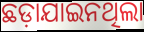
ଛଡ଼ାଯାଇନଥିଲା